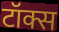
टॉक्स